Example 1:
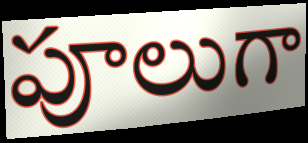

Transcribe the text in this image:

పూలుగా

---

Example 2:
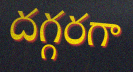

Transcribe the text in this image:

దగ్గరగా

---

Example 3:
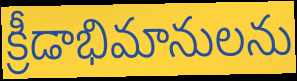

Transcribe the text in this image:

క్రీడాభిమానులను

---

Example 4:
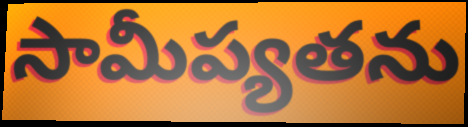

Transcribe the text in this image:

సామీప్యతను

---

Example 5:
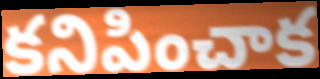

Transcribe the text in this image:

కనిపించాక